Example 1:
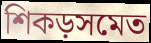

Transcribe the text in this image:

শিকড়সমেত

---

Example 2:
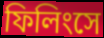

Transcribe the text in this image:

ফিলিংসে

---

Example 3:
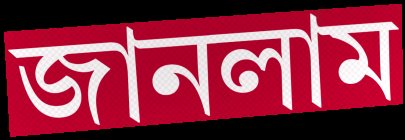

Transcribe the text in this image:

জানলাম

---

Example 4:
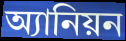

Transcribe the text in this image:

অ্যানিয়ন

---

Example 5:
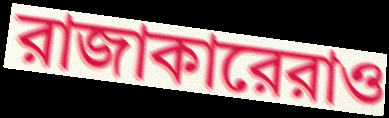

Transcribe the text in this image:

রাজাকারেরাও